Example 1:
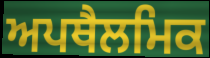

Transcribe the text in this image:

ਅਪਥੈਲਮਿਕ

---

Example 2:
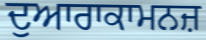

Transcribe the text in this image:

ਦੁਆਰਾਕਾਮਨਜ਼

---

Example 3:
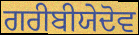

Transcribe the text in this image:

ਗਰੀਬੀਯੇਦੋਵ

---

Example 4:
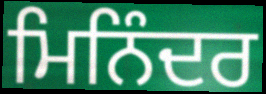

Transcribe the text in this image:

ਮਿਨਿੰਦਰ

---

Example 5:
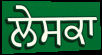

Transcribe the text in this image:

ਲੇਸਕਾ